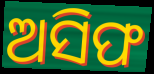
ଅସିଫ